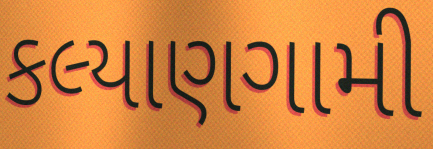
કલ્યાણગામી